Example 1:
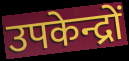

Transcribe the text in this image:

उपकेन्द्रों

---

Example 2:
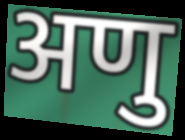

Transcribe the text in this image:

अणु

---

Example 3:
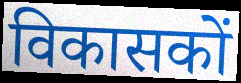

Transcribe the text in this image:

विकासकों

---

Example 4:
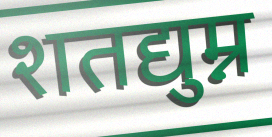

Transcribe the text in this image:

शतद्युम्न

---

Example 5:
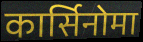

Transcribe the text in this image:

कार्सिनोमा